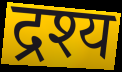
द्रश्य